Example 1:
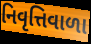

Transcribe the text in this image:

નિવૃત્તિવાળા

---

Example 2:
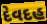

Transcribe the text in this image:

દેવદહ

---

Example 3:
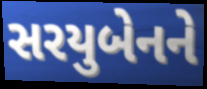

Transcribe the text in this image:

સરયુબેનને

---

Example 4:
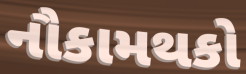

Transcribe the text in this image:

નૌકામથકો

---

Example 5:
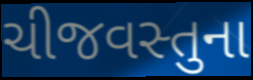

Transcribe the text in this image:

ચીજવસ્તુના